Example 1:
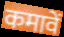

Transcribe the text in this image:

कमावें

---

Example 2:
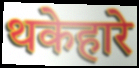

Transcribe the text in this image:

थकेहारे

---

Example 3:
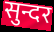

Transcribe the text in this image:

सुन्‍दर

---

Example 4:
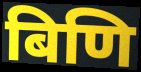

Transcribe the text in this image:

बिणि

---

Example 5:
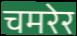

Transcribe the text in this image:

चमरेर